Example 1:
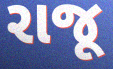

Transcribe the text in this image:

રાજૂ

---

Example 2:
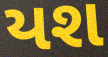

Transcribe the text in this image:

યશ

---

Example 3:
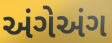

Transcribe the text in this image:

અંગેઅંગ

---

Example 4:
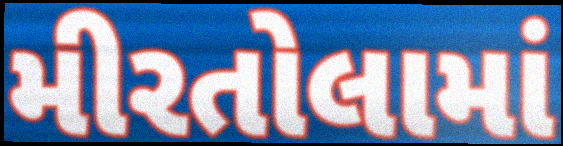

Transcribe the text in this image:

મીરતોલામાં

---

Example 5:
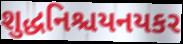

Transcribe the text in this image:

શુદ્ધનિશ્ચયનયકર